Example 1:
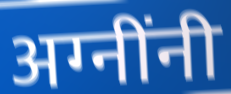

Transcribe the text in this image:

अग्नींनी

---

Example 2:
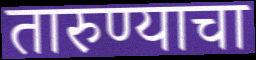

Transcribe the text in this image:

तारुण्याचा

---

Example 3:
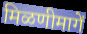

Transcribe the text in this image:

मिळणीमागें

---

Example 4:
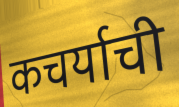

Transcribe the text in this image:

कचर्याची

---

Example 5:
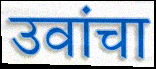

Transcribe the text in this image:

उवांचा